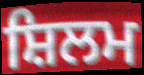
ਸ਼ਿਲਮ